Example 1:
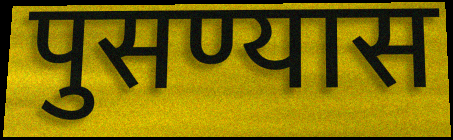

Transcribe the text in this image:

पुसण्यास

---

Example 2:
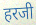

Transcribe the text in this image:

हरजी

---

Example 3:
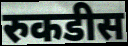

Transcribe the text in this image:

रुकडीस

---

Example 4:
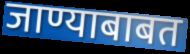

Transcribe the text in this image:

जाण्याबाबत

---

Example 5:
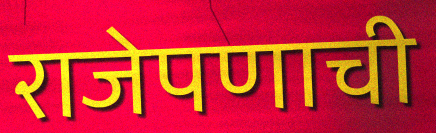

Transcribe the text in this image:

राजेपणाची